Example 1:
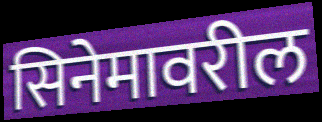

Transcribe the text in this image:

सिनेमावरील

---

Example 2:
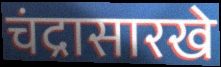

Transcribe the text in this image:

चंद्रासारखे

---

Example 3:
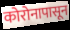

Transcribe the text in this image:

कोरोनापासून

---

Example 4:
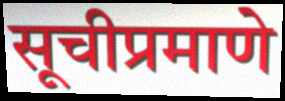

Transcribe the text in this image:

सूचीप्रमाणे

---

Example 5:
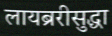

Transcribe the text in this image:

लायब्ररीसुद्धा